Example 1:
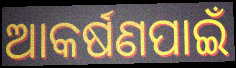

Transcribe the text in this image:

ଆକର୍ଷଣପାଇଁ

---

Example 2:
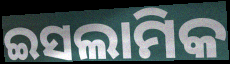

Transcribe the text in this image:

ଇସଲାମିକ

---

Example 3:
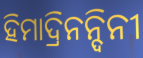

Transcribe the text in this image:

ହିମାଦ୍ରିନନ୍ଦିନୀ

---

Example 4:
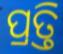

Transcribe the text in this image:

ପ୍ରତ୍ତି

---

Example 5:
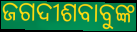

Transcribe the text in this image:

ଜଗଦୀଶବାବୁଙ୍କ